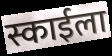
स्काईला